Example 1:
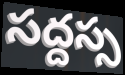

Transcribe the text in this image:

సద్దస్స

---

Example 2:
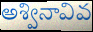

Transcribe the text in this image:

అశ్వినావివ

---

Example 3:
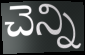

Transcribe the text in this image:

చెన్ని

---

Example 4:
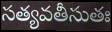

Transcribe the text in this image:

సత్యవతీసుతః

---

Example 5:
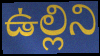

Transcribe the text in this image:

ఉల్లిని